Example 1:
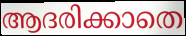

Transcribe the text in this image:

ആദരിക്കാതെ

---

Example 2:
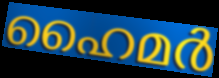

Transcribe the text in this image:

ഹൈമർ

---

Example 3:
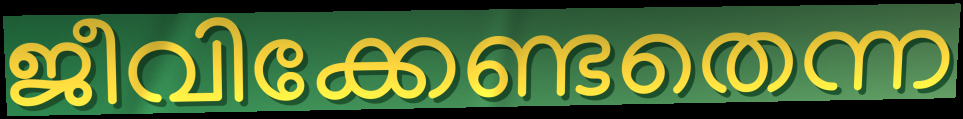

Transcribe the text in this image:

ജീവിക്കേണ്ടതെന്ന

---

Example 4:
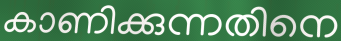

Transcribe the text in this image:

കാണിക്കുന്നതിനെ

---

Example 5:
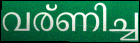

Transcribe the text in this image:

വര്ണിച്ച